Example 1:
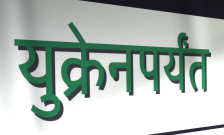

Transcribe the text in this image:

युक्रेनपर्यंत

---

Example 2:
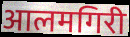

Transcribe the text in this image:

आलमगिरी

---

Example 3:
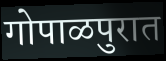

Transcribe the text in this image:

गोपाळपुरात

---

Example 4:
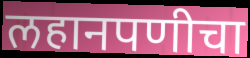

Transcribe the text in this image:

लहानपणीचा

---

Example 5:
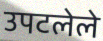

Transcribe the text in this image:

उपटलेले